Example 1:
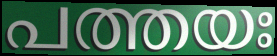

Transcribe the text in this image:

പത്തയഃ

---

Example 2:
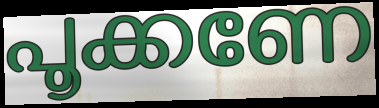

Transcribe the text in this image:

പൂക്കണേ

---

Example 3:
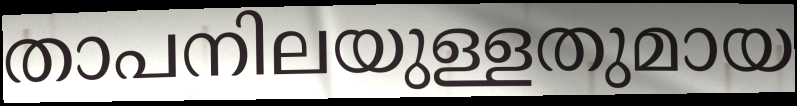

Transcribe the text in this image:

താപനിലയുള്ളതുമായ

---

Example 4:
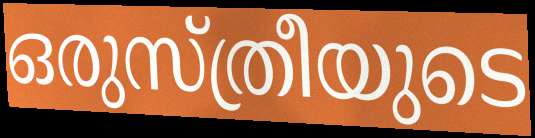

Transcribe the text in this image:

ഒരുസ്ത്രീയുടെ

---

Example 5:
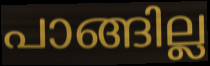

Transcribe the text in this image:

പാങ്ങില്ല